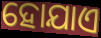
ହୋଯାଏ